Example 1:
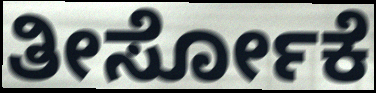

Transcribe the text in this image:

ತೀರ್ಸೋಕೆ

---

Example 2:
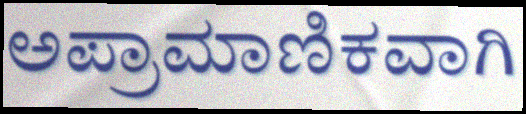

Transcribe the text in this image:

ಅಪ್ರಾಮಾಣಿಕವಾಗಿ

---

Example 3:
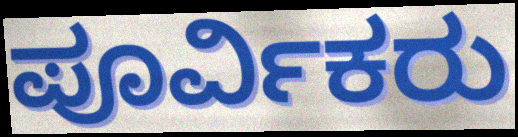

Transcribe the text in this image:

ಪೂರ್ವಿಕರು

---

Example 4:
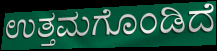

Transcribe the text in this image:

ಉತ್ತಮಗೊಂಡಿದೆ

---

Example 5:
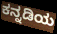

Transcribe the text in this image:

ಕನ್ನಡಿಯ